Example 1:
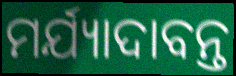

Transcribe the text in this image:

ମର୍ଯ୍ୟାଦାବନ୍ତ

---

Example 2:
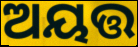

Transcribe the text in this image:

ଅୟତ୍ତ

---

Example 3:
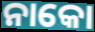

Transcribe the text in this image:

ନାକୋ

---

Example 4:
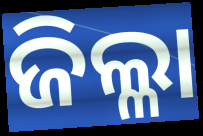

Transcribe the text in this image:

ଜିଲ୍ଳା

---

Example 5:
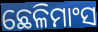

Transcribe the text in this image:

ଛେଳିମାଂସ